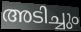
അടിച്ചും